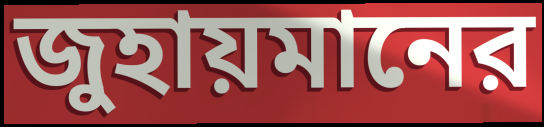
জুহায়মানের